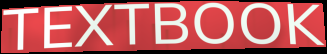
TEXTBOOK